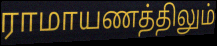
ராமாயணத்திலும்